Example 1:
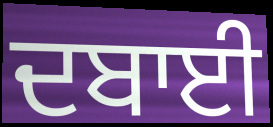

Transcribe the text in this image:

ਦਬਾਈ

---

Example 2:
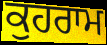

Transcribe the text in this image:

ਕੁਹਰਾਮ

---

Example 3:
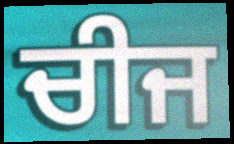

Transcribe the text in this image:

ਚੀਜ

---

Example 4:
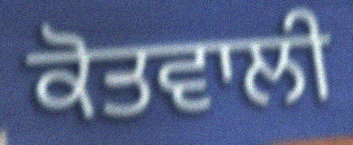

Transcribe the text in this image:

ਕੋਤਵਾਲੀ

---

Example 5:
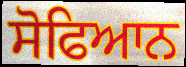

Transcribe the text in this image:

ਸੋਫਿਆਨ